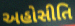
અહોસીતિ